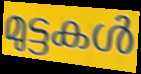
മുട്ടകൾ